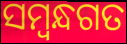
ସମ୍ବନ୍ଧଗତ